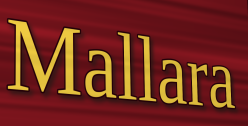
Mallara